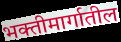
भक्तीमार्गातील